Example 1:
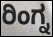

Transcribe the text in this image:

ರಿಂಗ್ನ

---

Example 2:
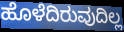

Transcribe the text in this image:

ಹೊಳೆದಿರುವುದಿಲ್ಲ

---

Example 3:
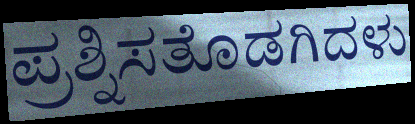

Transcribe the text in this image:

ಪ್ರಶ್ನಿಸತೊಡಗಿದಳು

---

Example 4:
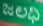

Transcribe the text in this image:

ಜಲಧಿ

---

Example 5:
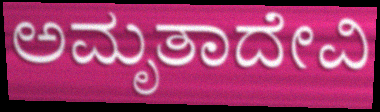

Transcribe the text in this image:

ಅಮೃತಾದೇವಿ